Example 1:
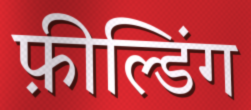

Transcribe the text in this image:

फ़ील्डिंग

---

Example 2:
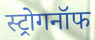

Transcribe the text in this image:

स्ट्रोगनॉफ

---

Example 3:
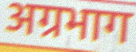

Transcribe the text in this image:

अग्रभाग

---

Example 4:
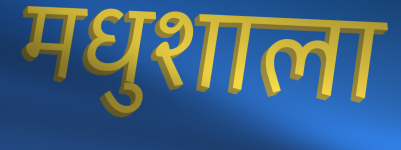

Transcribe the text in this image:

मधुशाला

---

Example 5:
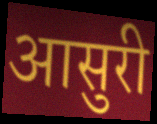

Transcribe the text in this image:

आसुरी